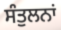
ਸੰਤੁਲਨਾਂ